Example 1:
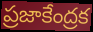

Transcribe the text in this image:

ప్రజాకేంద్రక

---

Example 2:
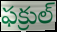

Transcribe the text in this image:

ఫక్రుల్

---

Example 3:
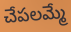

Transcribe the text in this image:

చేపలమ్మే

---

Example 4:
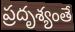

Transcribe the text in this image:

ప్రదృశ్యంతే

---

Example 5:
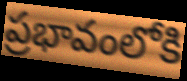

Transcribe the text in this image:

ప్రభావంలోకి